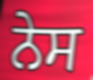
ਨੇਸ